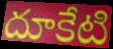
దూకేటి